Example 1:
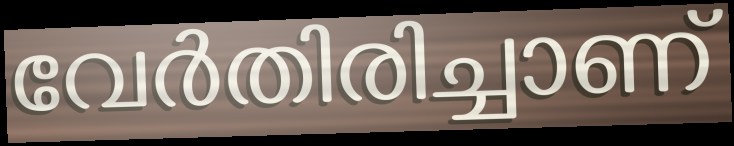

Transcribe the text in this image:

വേർതിരിച്ചാണ്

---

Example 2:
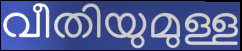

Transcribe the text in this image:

വീതിയുമുള്ള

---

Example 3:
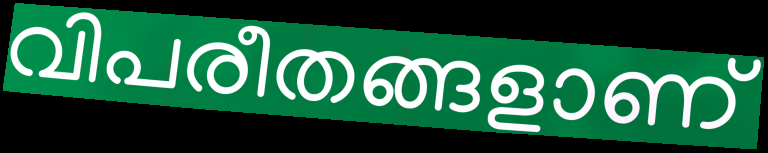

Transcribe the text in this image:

വിപരീതങ്ങളാണ്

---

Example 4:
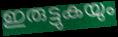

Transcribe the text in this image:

ഇരുട്ടുകയും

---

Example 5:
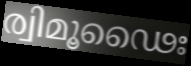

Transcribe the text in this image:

ര്വിമൂഢൈഃ